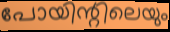
പോയിന്റിലെയും